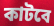
কাটবে